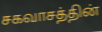
சகவாசத்தின்